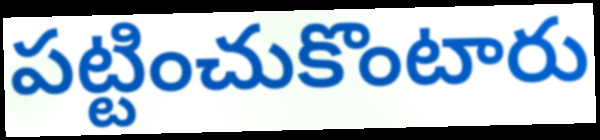
పట్టించుకొంటారు